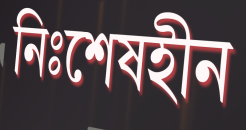
নিঃশেষহীন